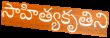
సాహిత్యకృతిని